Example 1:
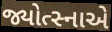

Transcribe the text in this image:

જ્યોત્સ્નાએ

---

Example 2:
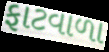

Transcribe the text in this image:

ફાટવાળા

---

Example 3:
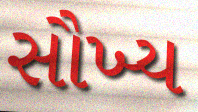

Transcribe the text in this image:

સૌખ્ય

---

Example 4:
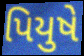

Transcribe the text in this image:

પિયુષે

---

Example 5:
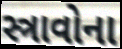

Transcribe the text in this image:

સ્ત્રાવોના